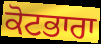
ਕੋਟਭਾਰਾ